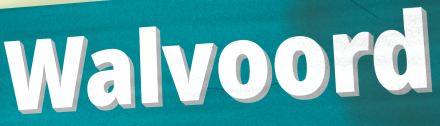
Walvoord